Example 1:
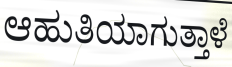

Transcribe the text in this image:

ಆಹುತಿಯಾಗುತ್ತಾಳೆ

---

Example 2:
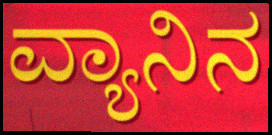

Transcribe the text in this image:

ವ್ಯಾನಿನ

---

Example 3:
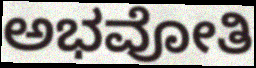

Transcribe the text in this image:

ಅಭವೋತಿ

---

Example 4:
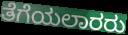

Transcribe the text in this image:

ತೆಗೆಯಲಾರರು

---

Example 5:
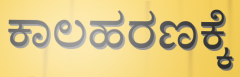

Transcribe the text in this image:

ಕಾಲಹರಣಕ್ಕೆ